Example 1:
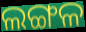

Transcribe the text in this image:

ଲଙ୍ଗଳ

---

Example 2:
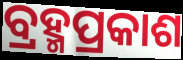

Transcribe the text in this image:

ବ୍ରହ୍ମପ୍ରକାଶ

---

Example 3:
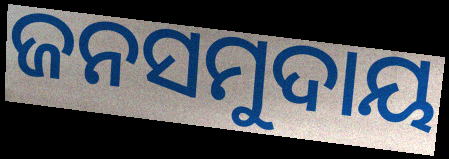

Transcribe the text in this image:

ଜନସମୁଦାୟ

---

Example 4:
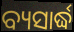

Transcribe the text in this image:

ବ୍ୟସାର୍ଦ୍ଧ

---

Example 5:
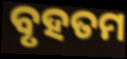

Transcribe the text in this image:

ବୃହତମ